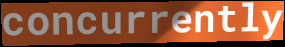
concurrently